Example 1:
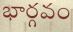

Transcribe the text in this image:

భార్గవం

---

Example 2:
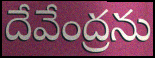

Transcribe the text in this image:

దేవేంద్రను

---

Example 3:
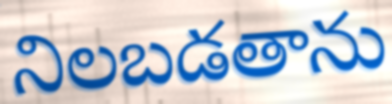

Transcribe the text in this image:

నిలబడతాను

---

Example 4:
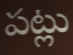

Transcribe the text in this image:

పట్లు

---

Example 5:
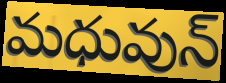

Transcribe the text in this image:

మధువున్